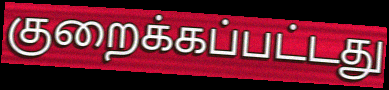
குறைக்கப்பட்டது